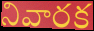
నివారక